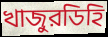
খাজুরডিহি